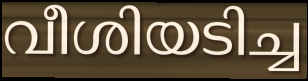
വീശിയടിച്ച